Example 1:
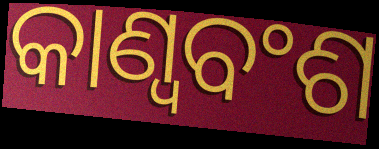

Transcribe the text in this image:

କାଣ୍ୱବଂଶ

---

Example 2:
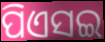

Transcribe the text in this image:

ପିଏସଇ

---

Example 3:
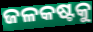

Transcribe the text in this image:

ଜଳକଷ୍ଟକୁ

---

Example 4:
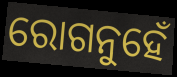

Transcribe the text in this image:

ରୋଗନୁହେଁ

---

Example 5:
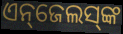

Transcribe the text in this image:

ଏନ୍‌ଜେଲସ୍‌ଙ୍କ